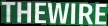
THEWIRE